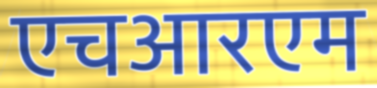
एचआरएम